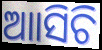
ଆାସିଚି